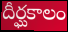
దీర్ఘకాలం